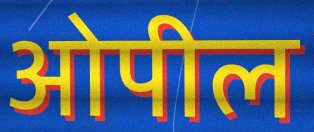
ओपील